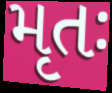
મૃતઃ